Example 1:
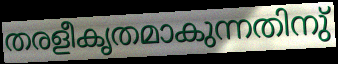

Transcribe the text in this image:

തരളീകൃതമാകുന്നതിനു്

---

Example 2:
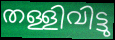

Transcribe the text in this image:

തള്ളിവിട്ടു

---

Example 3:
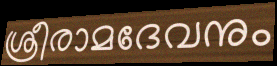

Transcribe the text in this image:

ശ്രീരാമദേവനും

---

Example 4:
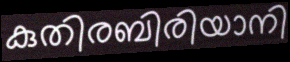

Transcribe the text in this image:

കുതിരബിരിയാനി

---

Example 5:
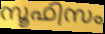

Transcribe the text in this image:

സൂഫിസം